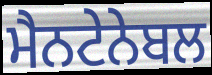
ਮੈਨਟੇਨੇਬਲ